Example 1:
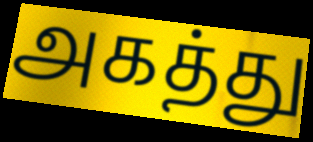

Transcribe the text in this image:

அகத்து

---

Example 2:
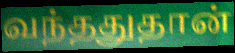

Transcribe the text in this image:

வந்ததுதான்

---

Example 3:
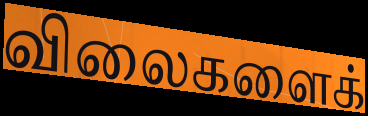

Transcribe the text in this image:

விலைகளைக்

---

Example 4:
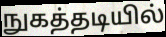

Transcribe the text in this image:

நுகத்தடியில்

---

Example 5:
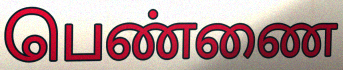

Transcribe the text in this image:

பெண்ணை